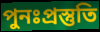
পুনঃপ্রস্তুতি